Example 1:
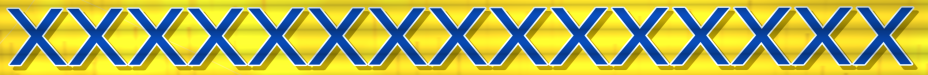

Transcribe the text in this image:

xxxxxxxxxxxxxxx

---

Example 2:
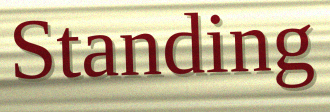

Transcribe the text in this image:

Standing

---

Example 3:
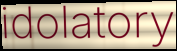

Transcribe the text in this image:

idolatory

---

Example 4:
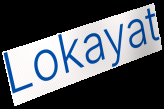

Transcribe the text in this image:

Lokayat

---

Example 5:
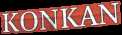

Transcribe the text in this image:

KONKAN